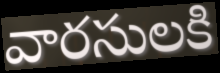
వారసులకి